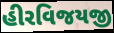
હીરવિજયજી